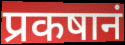
प्रकषानं